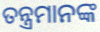
ତନ୍ତ୍ରମାନଙ୍କ